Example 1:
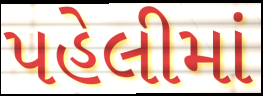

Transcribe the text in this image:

પહેલીમાં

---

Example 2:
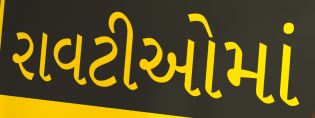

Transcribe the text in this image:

રાવટીઓમાં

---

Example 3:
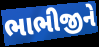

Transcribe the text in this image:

ભાભીજીને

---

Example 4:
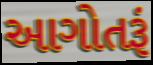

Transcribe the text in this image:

આગોતરૂં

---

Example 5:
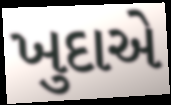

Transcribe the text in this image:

ખુદાએ